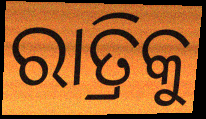
ରାତ୍ରିକୁ